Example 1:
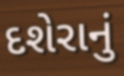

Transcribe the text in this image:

દશેરાનું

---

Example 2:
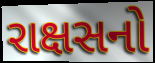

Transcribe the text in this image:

રાક્ષસનો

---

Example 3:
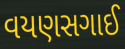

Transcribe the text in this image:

વયણસગાઈ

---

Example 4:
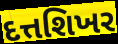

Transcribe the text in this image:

દત્તશિખર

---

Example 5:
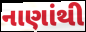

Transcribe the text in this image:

નાણાંથી